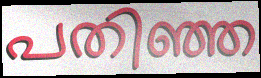
പതിഞ്ഞ